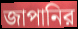
জাপানির